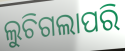
ଲୁଚିଗଲାପରି